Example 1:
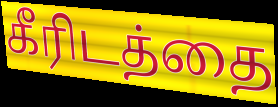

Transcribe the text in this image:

கீரிடத்தை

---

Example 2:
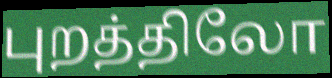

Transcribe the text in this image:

புறத்திலோ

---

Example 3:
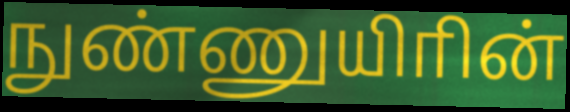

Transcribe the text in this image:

நுண்ணுயிரின்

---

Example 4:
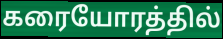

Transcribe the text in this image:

கரையோரத்தில்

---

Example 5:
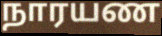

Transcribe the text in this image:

நாரயண